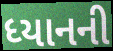
ધ્યાનની